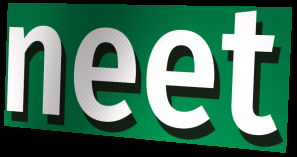
neet